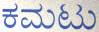
ಕಮಟು